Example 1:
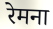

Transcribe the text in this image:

रेमना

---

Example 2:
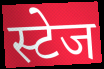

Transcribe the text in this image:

स्टेज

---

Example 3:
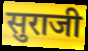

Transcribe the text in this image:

सुराजी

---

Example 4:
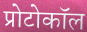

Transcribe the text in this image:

प्रोटोकॉल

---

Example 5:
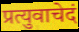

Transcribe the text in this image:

प्रत्युवाचेदं